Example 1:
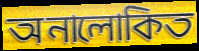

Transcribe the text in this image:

অনালোকিত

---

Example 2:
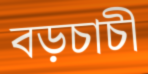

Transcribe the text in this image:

বড়চাচী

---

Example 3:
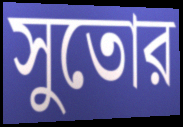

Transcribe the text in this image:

সুতোর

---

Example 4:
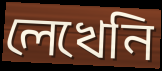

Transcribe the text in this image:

লেখেনি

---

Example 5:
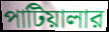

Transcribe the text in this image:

পাটিয়ালার